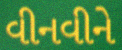
વીનવીને